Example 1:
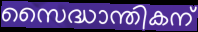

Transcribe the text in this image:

സൈദ്ധാന്തികന്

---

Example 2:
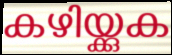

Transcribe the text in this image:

കഴിയ്ക്കുക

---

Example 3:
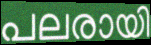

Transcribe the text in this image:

പലരായി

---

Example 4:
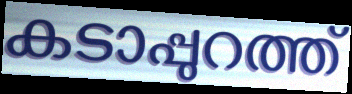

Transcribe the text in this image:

കടാപ്പുറത്ത്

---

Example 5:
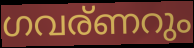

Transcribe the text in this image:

ഗവര്ണറും